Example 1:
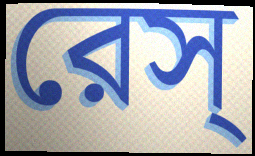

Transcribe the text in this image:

রেস্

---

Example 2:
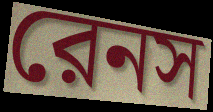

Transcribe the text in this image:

রেনস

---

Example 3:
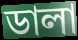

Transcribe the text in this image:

ডালা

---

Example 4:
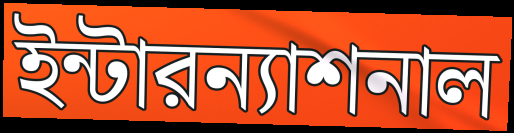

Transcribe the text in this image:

ইন্টারন্যাশনাল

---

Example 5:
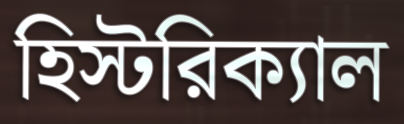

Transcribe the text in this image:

হিস্টরিক্যাল